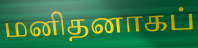
மனிதனாகப்